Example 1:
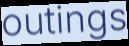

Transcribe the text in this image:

outings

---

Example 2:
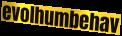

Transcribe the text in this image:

evolhumbehav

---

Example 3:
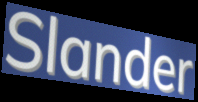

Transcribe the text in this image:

Slander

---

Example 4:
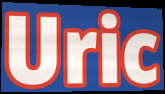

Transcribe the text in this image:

Uric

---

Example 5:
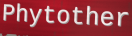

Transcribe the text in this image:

Phytother